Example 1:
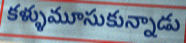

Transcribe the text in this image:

కళ్ళుమూసుకున్నాడు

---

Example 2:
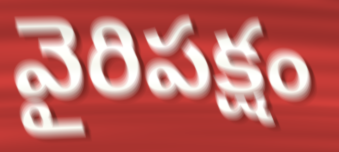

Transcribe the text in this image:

వైరిపక్షం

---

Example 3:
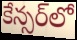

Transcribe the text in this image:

కేన్సర్‌లో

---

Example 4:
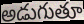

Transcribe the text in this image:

అడుగుతూ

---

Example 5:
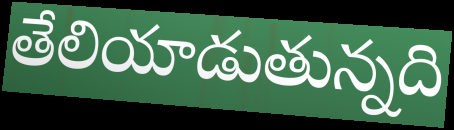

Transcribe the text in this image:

తేలియాడుతున్నది